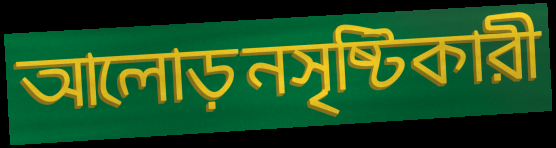
আলোড়নসৃষ্টিকারী